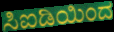
ಸಿಐಡಿಯಿಂದ